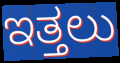
ಇತ್ತಲು